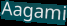
Aagami